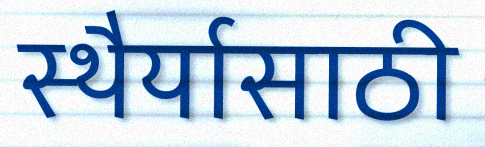
स्थैर्यासाठी